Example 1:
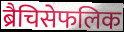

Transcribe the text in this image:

ब्रैचिसेफलिक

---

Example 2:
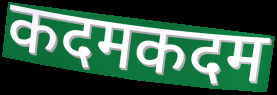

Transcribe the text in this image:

कदमकदम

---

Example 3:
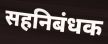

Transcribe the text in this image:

सहनिबंधक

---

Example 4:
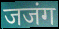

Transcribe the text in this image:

जजंग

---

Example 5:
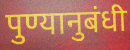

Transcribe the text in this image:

पुण्यानुबंधी